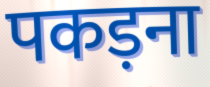
पकड़ना